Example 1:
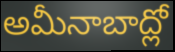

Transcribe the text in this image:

అమీనాబాద్లో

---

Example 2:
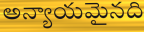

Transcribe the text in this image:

అన్యాయమైనది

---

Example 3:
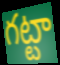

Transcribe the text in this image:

గట్టా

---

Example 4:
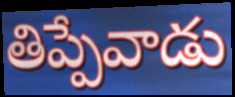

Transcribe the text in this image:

తిప్పేవాడు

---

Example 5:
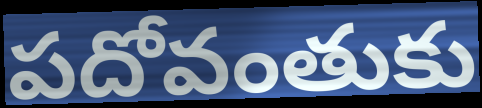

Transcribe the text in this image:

పదోవంతుకు